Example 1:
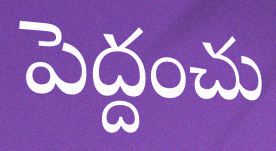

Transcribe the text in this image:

పెద్దంచు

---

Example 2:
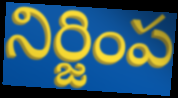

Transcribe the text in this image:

నిర్జింప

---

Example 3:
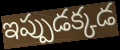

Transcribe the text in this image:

ఇప్పుడక్కడ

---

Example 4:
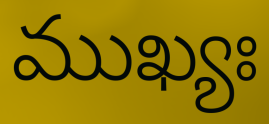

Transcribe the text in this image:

ముఖ్యః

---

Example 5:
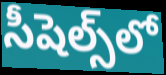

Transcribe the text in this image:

సీషెల్స్‌లో